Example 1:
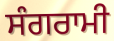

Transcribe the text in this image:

ਸੰਗਰਾਮੀ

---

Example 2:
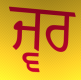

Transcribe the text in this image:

ਜ੍ਵਰ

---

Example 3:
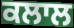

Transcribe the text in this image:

ਕਲਾਲ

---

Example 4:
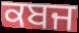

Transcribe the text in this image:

ਕਬਜ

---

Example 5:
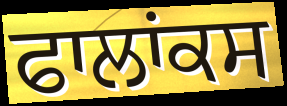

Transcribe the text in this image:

ਫਾਲਾਂਕਸ